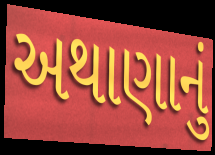
અથાણાનું